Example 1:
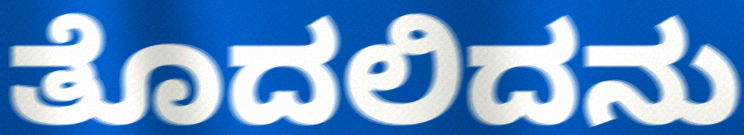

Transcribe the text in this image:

ತೊದಲಿದನು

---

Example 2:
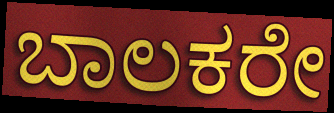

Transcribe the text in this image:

ಬಾಲಕರೇ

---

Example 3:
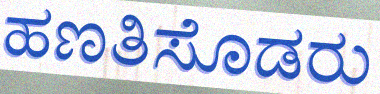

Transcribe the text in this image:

ಹಣತಿಸೊಡರು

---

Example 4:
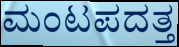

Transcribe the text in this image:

ಮಂಟಪದತ್ತ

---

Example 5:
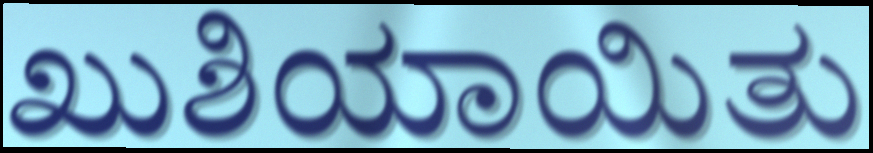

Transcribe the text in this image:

ಖುಶಿಯಾಯಿತು